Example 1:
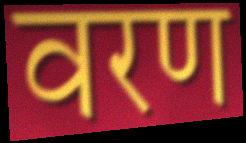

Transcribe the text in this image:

वरण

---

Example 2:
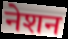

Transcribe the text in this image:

नेशन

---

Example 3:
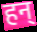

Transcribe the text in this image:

हन्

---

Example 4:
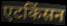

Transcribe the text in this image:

एटकिंसन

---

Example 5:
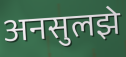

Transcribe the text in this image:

अनसुलझे